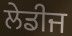
ਲੇਡੀਜ